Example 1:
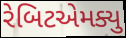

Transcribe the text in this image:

રેબિટએમક્યુ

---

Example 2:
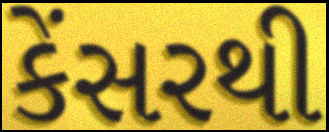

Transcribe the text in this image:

કેંસરથી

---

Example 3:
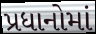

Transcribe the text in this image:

પ્રધાનોમાં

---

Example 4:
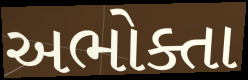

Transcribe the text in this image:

અભોક્તા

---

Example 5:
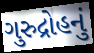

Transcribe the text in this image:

ગુરુદ્રોહનું